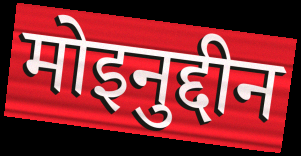
मोइनुद्दीन